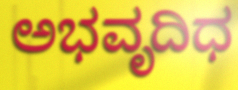
ಅಭವೃದಿಧ